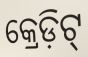
କ୍ରେଡ଼ିଟ୍